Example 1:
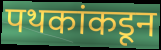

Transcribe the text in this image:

पथकांकडून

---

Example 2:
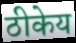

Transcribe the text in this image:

ठीकेय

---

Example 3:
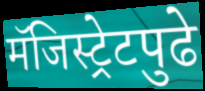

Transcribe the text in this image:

मॅजिस्ट्रेटपुढे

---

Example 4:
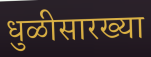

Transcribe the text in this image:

धुळीसारख्या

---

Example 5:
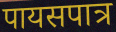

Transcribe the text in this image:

पायसपात्र